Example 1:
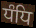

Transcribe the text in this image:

ਧੰਧਿ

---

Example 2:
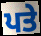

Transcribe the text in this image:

ਪਤੇ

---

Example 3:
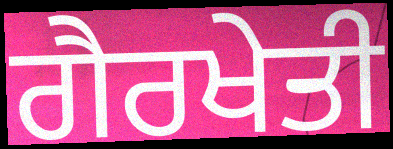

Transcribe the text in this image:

ਗੈਰਖੇਤੀ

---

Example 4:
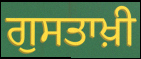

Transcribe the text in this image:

ਗੁਸਤਾਖ਼ੀ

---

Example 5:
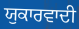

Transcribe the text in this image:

ਯੁਕਾਰਵਾਦੀ